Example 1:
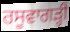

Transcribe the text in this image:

ਰਸੂਵਾਗੜ੍ਹੀ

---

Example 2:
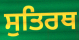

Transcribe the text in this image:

ਸੁਤਿਰਥ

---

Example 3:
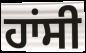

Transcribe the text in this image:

ਹਾਂਸੀ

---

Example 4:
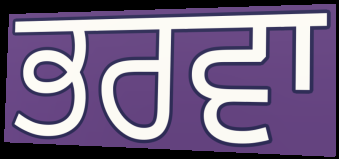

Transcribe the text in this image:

ਭਰਵਾ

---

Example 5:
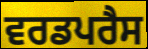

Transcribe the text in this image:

ਵਰਡਪਰੈਸ